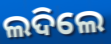
ଲଦିଲେ